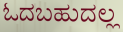
ಓದಬಹುದಲ್ಲ